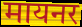
मायनर